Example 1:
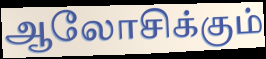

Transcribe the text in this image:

ஆலோசிக்கும்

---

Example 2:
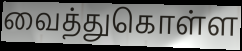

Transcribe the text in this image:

வைத்துகொள்ள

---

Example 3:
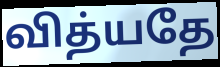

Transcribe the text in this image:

வித்யதே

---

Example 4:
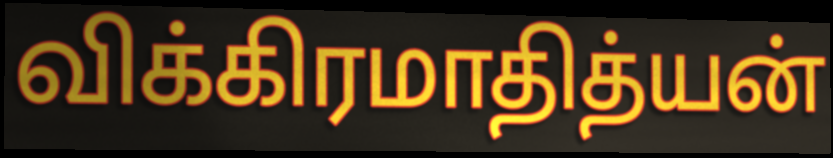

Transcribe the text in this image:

விக்கிரமாதித்யன்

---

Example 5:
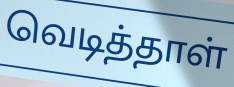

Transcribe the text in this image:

வெடித்தாள்